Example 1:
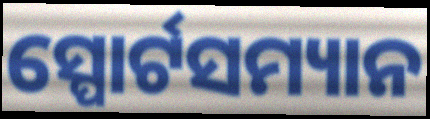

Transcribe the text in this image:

ସ୍ପୋର୍ଟସମ୍ୟାନ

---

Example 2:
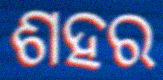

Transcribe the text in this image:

ଶହର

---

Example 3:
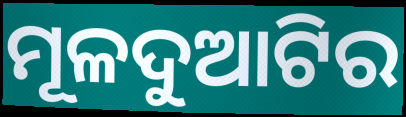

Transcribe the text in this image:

ମୂଳଦୁଆଟିର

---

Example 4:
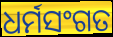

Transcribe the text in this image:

ଧର୍ମସଂଗତ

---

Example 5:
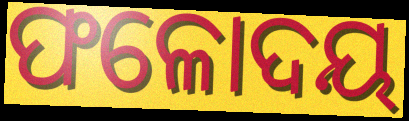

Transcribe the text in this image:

ଫଳୋଦୟ